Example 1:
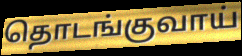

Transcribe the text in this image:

தொடங்குவாய்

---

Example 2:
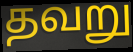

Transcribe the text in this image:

தவறு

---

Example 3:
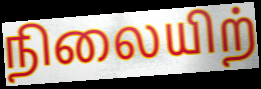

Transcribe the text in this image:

நிலையிற்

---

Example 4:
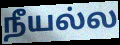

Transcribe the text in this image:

நீயல்ல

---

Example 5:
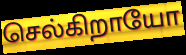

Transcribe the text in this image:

செல்கிறாயோ